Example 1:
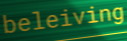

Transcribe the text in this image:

beleiving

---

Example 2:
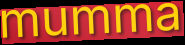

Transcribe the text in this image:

mumma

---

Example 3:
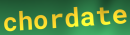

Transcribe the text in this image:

chordate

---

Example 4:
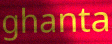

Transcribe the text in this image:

ghanta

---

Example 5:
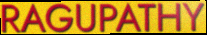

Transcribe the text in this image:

RAGUPATHY